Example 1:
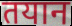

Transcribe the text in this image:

तयान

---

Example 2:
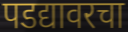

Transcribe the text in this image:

पडद्यावरचा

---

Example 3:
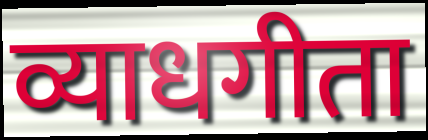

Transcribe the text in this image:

व्याधगीता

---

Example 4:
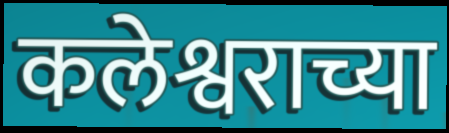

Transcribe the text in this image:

कलेश्वराच्या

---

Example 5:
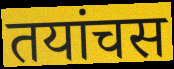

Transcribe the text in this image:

तयांचस